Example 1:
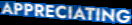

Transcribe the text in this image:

APPRECIATING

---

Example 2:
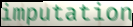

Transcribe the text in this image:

imputation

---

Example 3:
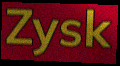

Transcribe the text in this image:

Zysk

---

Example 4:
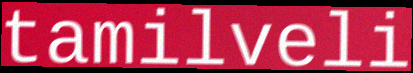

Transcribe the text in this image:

tamilveli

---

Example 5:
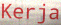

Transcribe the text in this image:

Kerja